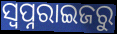
ସ୍ୱପ୍ନରାଇଜରୁ